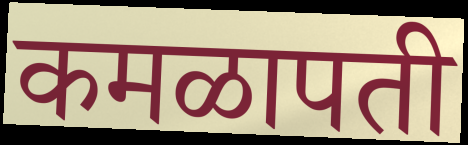
कमळापती